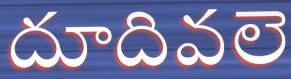
దూదివలె